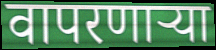
वापरणार्‍या